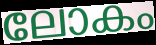
ലോകം